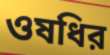
ওষধির